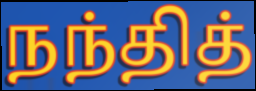
நந்தித்